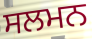
ਸਲਮਨ